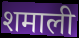
शमाली